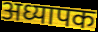
अध्यापक